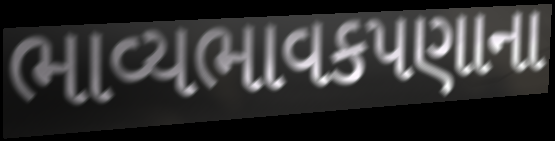
ભાવ્યભાવકપણાના